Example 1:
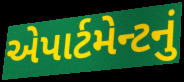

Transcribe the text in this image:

એપાર્ટમેન્ટનું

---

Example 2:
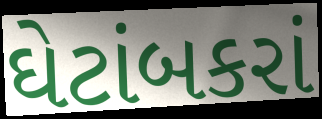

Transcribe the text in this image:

ઘેટાંબકરાં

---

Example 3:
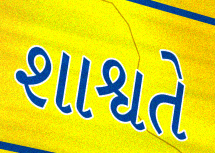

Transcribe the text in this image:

શાશ્વતે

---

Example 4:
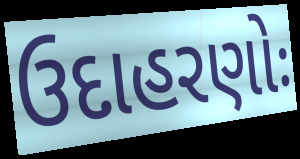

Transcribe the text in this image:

ઉદાહરણોઃ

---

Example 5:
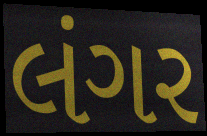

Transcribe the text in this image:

લંગર